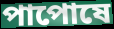
পাপোষে